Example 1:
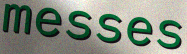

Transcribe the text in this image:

messes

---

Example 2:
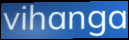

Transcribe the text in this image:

vihanga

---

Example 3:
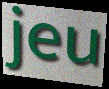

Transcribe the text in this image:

jeu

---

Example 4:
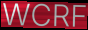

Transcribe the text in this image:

WCRF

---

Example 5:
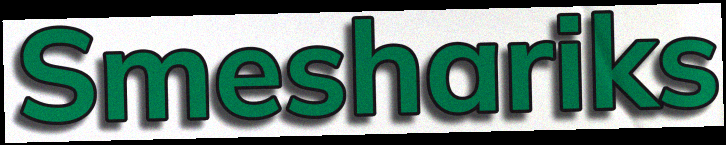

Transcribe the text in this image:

Smeshariks